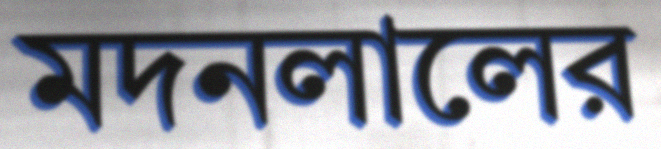
মদনলালের